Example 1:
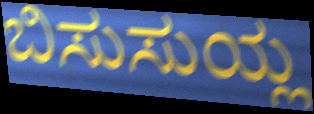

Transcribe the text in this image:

ಬಿಸುಸುಯ್ಲ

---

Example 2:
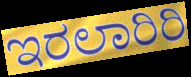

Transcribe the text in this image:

ಇರಲಾರಿರಿ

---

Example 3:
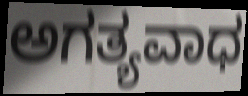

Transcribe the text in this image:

ಅಗತ್ಯವಾಧ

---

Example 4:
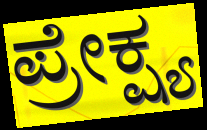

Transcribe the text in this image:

ಪ್ರೇಕ್ಷ್ಯ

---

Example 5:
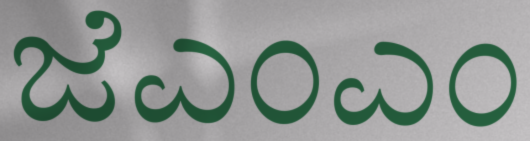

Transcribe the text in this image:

ಜೆಎಂಎಂ